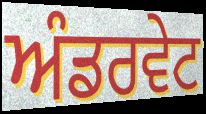
ਅੰਡਰਵੇਟ